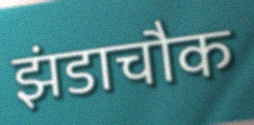
झंडाचौक